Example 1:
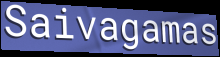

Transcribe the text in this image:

Saivagamas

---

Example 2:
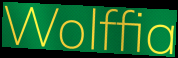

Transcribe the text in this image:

Wolffia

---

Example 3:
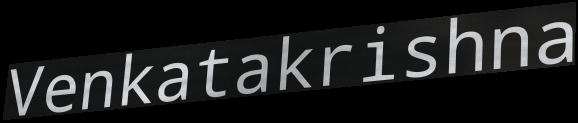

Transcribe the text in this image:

Venkatakrishna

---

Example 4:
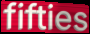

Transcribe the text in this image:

fifties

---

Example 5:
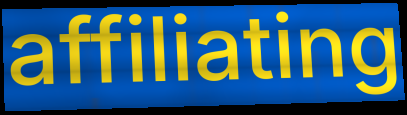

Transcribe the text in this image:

affiliating